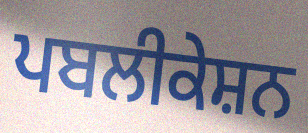
ਪਬਲੀਕੇਸ਼ਨ